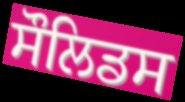
ਸੌਲਿਡਸ